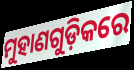
ମୁହାଣଗୁଡ଼ିକରେ